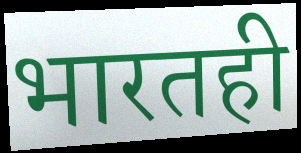
भारतही